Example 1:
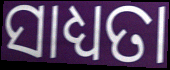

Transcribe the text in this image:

ସାଧ୍ୟତା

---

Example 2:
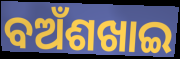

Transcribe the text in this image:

ବଅଁଶଖାଇ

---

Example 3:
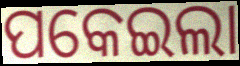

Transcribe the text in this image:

ପକେଇଲା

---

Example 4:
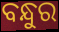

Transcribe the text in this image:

ବନ୍ଧୁର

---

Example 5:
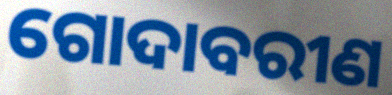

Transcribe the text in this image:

ଗୋଦାବରୀଣ